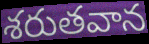
శరుతవాన